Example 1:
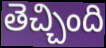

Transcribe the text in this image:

తెచ్చింది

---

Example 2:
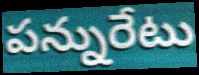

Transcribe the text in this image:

పన్నురేటు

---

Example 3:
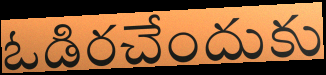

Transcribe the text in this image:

ఓడిరచేందుకు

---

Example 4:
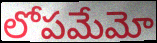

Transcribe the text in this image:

లోపమేమో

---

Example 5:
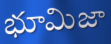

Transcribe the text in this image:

భూమిజా